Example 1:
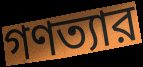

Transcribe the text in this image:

গণত্যার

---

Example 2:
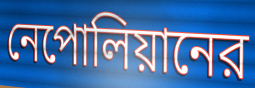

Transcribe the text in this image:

নেপোলিয়ানের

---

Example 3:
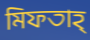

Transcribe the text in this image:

মিফতাহ্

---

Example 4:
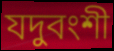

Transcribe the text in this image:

যদুবংশী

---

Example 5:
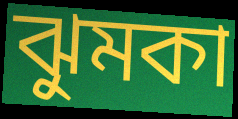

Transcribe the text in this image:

ঝুমকা